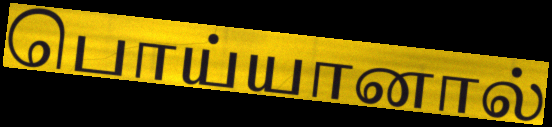
பொய்யானால்